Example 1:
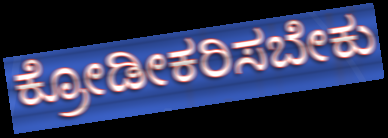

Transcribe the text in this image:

ಕ್ರೋಡೀಕರಿಸಬೇಕು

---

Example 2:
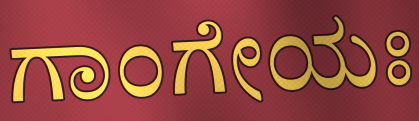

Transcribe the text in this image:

ಗಾಂಗೇಯಃ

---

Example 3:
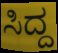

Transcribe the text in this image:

ಸಿದ್ದ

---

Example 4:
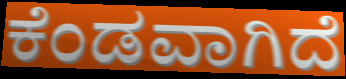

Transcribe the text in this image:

ಕೆಂಡವಾಗಿದೆ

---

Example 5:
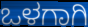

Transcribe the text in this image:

ಒಳಗಾಗಿ